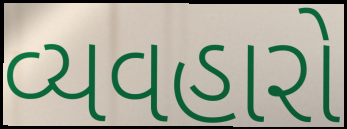
વ્યવહારો